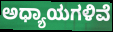
ಅಧ್ಯಾಯಗಳಿವೆ